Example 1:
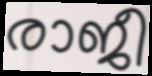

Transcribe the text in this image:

രാജീ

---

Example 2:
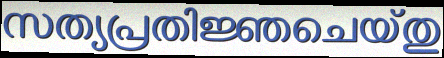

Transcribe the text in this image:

സത്യപ്രതിജ്ഞചെയ്തു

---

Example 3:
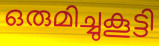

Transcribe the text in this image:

ഒരുമിച്ചുകൂട്ടി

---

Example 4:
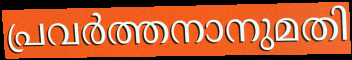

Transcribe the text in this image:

പ്രവർത്തനാനുമതി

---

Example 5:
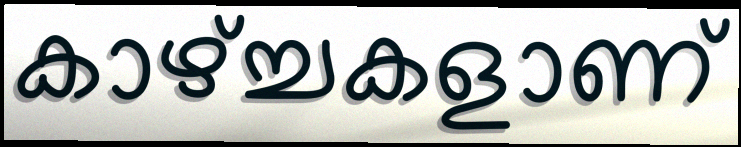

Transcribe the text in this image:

കാഴ്ച്ചകളാണ്